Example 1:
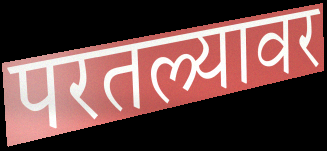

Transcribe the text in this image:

परतल्यावर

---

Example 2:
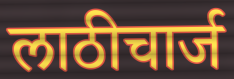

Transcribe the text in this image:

लाठीचार्ज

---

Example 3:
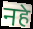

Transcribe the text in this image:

नहे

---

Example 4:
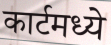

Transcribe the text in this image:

कार्टमध्ये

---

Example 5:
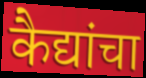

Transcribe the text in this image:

कैद्यांचा